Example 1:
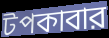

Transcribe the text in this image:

টপকাবার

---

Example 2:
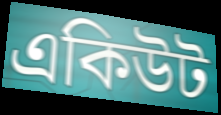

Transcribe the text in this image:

একিউট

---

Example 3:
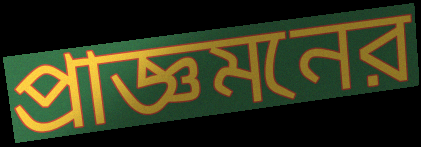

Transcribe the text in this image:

প্রাজ্ঞমনের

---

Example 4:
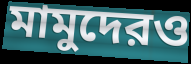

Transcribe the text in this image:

মামুদেরও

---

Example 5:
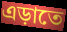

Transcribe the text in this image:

এড়াতে